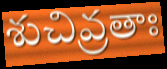
శుచివ్రతాః